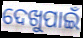
ଦେଖୁପାଇଁ